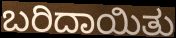
ಬರಿದಾಯಿತು